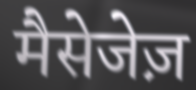
मैसेजेज़